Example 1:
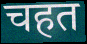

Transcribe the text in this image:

चहत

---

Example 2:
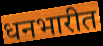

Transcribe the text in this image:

धनभारीत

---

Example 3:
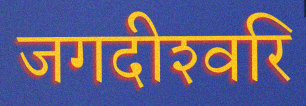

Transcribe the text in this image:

जगदीश्वरि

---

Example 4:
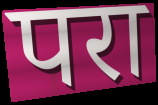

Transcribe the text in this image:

परा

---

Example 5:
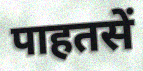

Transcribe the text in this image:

पाहतसें